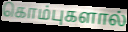
கொம்புகளால்